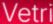
Vetri